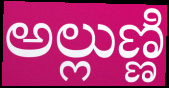
అల్లుణ్ణి